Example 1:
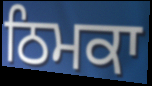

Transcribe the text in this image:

ਠਿਮਕਾ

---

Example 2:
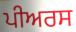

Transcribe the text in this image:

ਪੀਅਰਸ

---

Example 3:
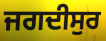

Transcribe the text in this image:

ਜਗਦੀਸੁਰ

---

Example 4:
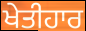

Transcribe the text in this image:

ਖੇਤੀਹਾਰ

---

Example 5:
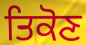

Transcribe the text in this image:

ਤਿਕੋਣ